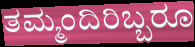
ತಮ್ಮಂದಿರಿಬ್ಬರೂ